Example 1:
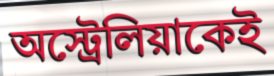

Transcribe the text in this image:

অস্ট্রেলিয়াকেই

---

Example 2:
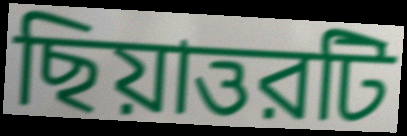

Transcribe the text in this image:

ছিয়াত্তরটি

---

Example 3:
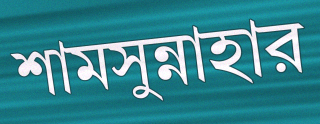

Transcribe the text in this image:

শামসুন্নাহার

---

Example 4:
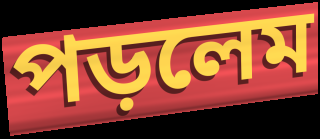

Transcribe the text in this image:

পড়লেম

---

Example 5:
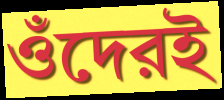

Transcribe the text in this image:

ওঁদেরই